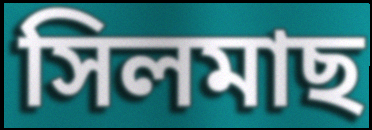
সিলমাছ